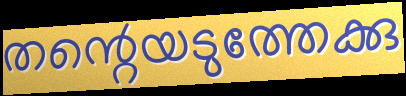
തന്റെയടുത്തേക്കു